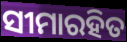
ସୀମାରହିତ